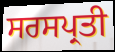
ਸਰਸਪ੍ਰਤੀ